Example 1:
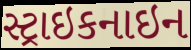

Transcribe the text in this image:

સ્ટ્રાઇકનાઇન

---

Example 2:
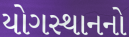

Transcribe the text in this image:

યોગસ્થાનનો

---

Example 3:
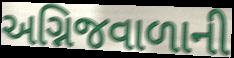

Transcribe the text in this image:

અગ્નિજવાળાની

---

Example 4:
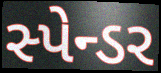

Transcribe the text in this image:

સ્પેન્ડર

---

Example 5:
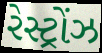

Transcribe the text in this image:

રેસ્ટ્રોંઝ